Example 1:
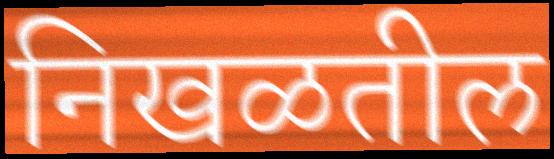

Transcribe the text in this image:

निखळतील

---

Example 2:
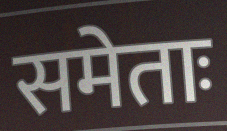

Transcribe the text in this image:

समेताः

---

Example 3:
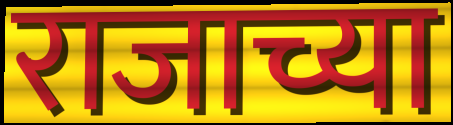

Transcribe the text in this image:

राजाच्या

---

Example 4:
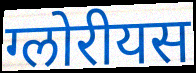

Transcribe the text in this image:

ग्लोरीयस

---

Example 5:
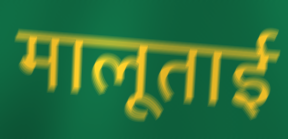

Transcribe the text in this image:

मालूताई